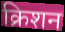
क्रिशन